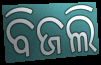
ବିଜଲି